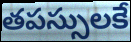
తపస్సులకే